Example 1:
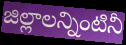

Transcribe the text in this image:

జిల్లాలన్నింటినీ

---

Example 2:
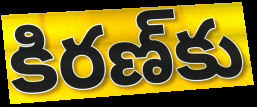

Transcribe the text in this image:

కిరణ్‌కు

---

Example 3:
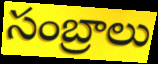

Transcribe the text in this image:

సంబ్రాలు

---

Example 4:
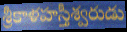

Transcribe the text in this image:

శ్రీకాళహస్తీశ్వరుడు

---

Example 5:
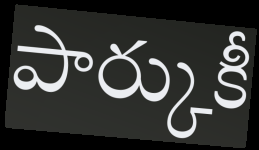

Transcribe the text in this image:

పార్కుకీ